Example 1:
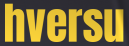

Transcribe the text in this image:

hversu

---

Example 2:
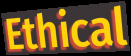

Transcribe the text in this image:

Ethical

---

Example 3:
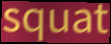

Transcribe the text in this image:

squat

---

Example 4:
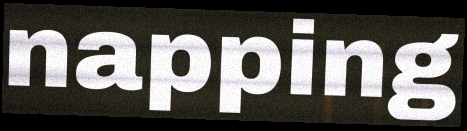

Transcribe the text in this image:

napping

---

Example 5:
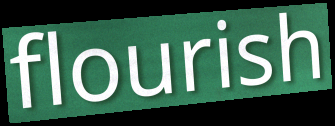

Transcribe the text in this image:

flourish